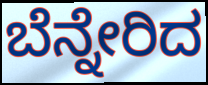
ಬೆನ್ನೇರಿದ